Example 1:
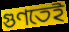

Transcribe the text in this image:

গুণতেই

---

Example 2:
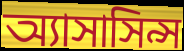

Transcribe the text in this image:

অ্যাসাসিন্স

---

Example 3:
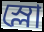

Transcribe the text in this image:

স্লো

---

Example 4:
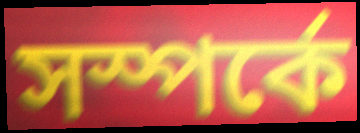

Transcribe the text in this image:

সস্পর্কে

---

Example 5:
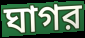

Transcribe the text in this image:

ঘাগর